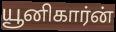
யூனிகார்ன்